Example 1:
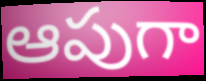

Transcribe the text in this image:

ఆపుగా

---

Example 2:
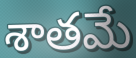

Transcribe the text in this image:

శాతమే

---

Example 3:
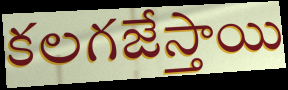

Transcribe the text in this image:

కలగజేస్తాయి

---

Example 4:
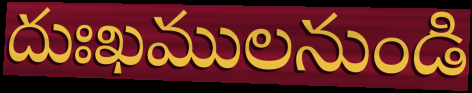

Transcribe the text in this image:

దుఃఖములనుండి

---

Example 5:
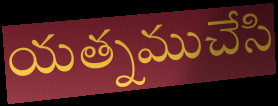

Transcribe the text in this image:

యత్నముచేసి